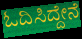
ಓದಿಸಿದ್ದೇನೆ